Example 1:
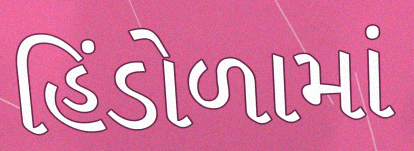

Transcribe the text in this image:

હિંડોળામાં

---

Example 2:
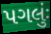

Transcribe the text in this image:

પગલુંઃ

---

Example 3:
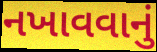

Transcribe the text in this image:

નખાવવાનું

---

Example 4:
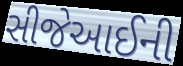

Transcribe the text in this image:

સીજેઆઈની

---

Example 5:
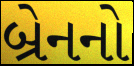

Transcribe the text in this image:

બ્રેનનો